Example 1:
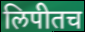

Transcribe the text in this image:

लिपीतच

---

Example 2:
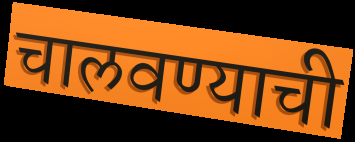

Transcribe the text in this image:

चालवण्याची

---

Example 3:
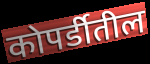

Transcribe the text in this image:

कोपर्डीतील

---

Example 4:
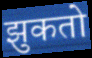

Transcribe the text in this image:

झुकतो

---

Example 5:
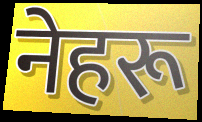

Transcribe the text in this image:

नेहरू